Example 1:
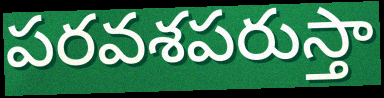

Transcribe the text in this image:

పరవశపరుస్తా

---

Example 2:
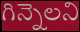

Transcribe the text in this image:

గిన్నెలని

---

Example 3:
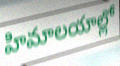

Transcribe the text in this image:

హిమాలయాల్లో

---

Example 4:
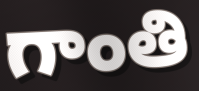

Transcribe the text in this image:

గాంతి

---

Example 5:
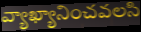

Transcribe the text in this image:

వ్యాఖ్యానించవలసి